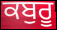
ਕਬੁਰੂ